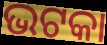
ଭଟକା